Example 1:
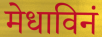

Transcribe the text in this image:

मेधाविनं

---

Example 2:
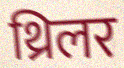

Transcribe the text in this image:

थ्रिलर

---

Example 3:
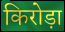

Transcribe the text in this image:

किरोड़ा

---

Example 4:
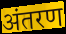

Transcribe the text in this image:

अंतरण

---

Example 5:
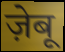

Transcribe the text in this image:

ज़ेबू